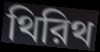
থিরিথ